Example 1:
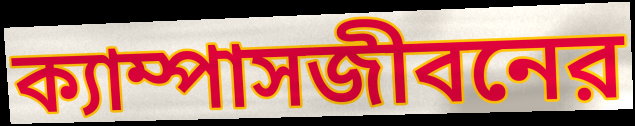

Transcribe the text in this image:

ক্যাম্পাসজীবনের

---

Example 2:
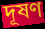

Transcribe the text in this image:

দূষণ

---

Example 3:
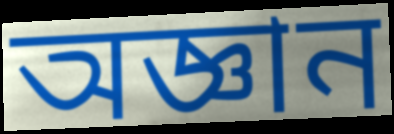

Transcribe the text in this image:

অজ্ঞান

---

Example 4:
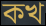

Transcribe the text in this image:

কখ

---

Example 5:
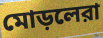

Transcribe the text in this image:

মোড়লেরা